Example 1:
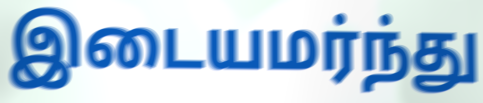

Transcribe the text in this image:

இடையமர்ந்து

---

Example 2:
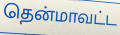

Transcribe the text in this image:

தென்மாவட்ட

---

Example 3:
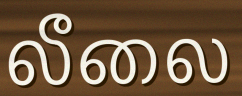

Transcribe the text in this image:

லீலை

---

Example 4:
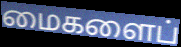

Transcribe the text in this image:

மைகளைப்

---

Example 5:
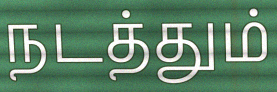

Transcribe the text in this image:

நடத்தும்